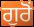
ਗੁਰੋਂ